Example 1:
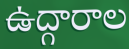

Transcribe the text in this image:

ఉద్గారాల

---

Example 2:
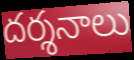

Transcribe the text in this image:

దర్శనాలు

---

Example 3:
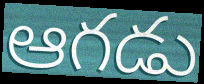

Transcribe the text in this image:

ఆగడు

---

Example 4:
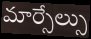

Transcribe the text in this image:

మార్సేల్సు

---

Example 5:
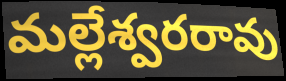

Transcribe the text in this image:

మల్లేశ్వరరావు